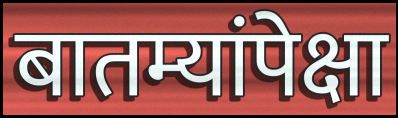
बातम्यांपेक्षा